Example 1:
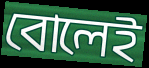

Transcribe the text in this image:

বোলেই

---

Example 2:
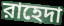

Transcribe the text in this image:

রাহেদা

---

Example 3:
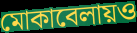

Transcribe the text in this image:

মোকাবেলায়ও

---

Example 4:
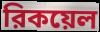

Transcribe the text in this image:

রিকয়েল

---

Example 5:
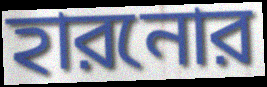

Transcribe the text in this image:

হারনোর